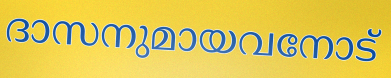
ദാസനുമായവനോട്